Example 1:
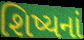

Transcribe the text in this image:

શિષ્યનાં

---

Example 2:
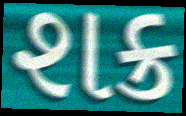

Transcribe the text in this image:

શક્ર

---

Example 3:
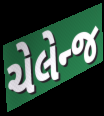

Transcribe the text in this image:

ચેલેન્જ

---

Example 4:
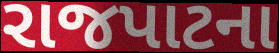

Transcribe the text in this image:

રાજપાટના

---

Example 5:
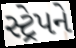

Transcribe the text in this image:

સ્ટ્રેપને